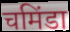
चमिंडा